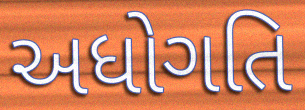
અધોગતિ